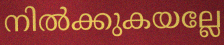
നിൽക്കുകയല്ലേ